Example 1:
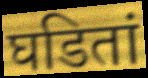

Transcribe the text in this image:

घडितां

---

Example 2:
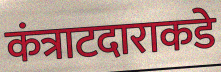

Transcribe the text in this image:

कंत्राटदाराकडे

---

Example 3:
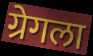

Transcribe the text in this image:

ग्रेगला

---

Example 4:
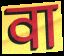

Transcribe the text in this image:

वा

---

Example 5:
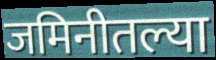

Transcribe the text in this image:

जमिनीतल्या